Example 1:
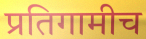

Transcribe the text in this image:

प्रतिगामीच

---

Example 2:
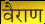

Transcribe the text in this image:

वैराण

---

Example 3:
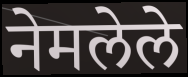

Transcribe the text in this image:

नेमलेले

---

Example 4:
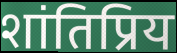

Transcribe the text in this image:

शांतिप्रिय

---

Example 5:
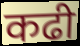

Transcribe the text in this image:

कढी